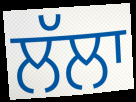
ਲੱਲਾ